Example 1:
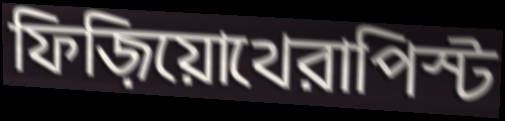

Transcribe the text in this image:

ফিজ়িয়োথেরাপিস্ট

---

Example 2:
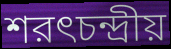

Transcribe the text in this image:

শরৎচন্দ্রীয়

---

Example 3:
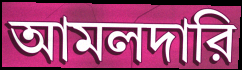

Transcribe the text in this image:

আমলদারি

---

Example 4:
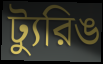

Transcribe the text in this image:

ট্যুরিঙ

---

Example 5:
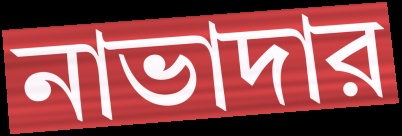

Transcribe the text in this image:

নাভাদার